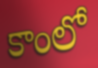
కాంలో